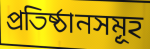
প্ৰতিষ্ঠানসমূহ